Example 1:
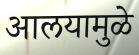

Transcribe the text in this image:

आलयामुळे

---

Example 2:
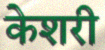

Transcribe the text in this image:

केशरी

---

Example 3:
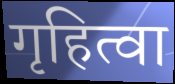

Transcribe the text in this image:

गृहित्वा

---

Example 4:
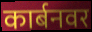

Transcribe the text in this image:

कार्बनवर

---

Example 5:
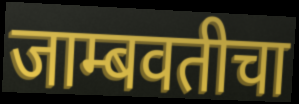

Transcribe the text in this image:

जाम्बवतीचा